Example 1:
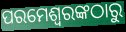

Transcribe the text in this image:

ପରମେଶ୍ଵରଙ୍କଠାରୁ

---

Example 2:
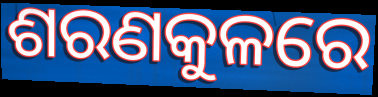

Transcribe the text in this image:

ଶରଣକୁଳରେ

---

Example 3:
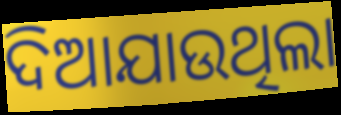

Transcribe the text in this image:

ଦିଆଯାଉଥିଲା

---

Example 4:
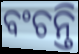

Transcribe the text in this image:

ବଂଚନ୍ତି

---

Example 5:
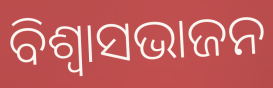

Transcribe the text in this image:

ବିଶ୍ଵାସଭାଜନ